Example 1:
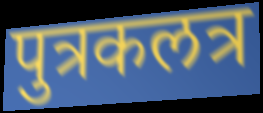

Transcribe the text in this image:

पुत्रकलत्र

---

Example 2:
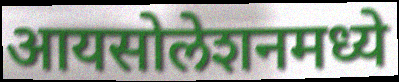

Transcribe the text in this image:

आयसोलेशनमध्ये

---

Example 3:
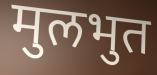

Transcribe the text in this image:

मुलभुत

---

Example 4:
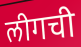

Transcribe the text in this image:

लीगची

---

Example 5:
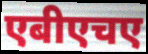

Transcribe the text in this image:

एबीएचए